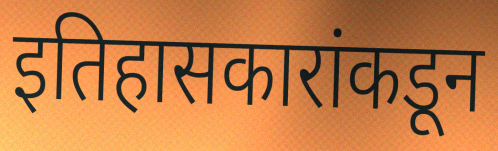
इतिहासकारांकडून